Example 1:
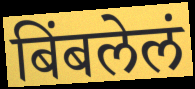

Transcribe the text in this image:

बिंबलेलं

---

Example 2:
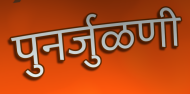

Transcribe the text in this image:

पुनर्जुळणी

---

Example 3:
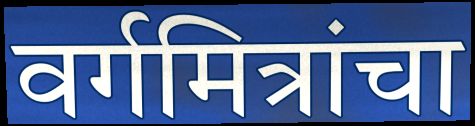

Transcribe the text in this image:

वर्गमित्रांचा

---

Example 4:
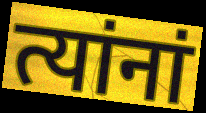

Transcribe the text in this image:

त्यांनां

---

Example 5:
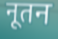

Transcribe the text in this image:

नूतन